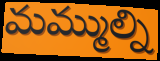
మమ్ముల్ని